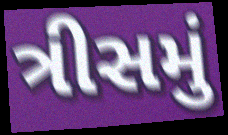
ત્રીસમું